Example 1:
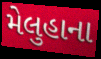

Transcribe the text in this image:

મેલુહાના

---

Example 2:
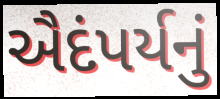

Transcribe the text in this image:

ઐદંપર્યનું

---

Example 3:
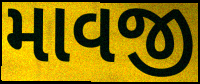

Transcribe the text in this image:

માવજી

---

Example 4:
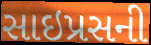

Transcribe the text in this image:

સાઇપ્રસની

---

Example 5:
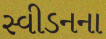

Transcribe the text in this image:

સ્વીડનના